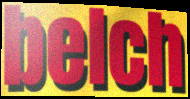
belch